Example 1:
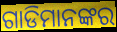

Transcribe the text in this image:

ଗାଡିମାନଙ୍କର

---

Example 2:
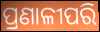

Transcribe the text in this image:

ପ୍ରଣାଳୀପରି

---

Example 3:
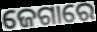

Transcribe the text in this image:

ଜେଗାରେ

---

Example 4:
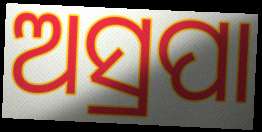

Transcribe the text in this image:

ଅସ୍ରପା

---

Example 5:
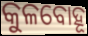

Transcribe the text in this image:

କୁଳବୋହୂ